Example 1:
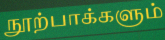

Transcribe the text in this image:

நூற்பாக்களும்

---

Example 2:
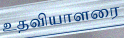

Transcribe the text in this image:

உதவியாளரை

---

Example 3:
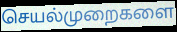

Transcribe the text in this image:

செயல்முறைகளை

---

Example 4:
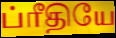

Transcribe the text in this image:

ப்ரீதியே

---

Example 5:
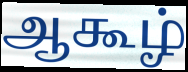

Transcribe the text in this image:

ஆகூழ்